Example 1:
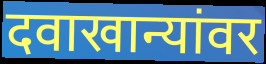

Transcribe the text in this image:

दवाखान्यांवर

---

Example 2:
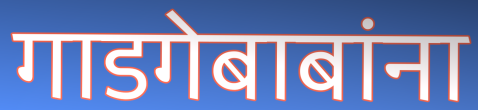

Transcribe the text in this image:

गाडगेबाबांना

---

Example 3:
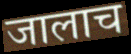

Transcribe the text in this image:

जालाच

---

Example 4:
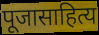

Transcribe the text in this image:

पूजासाहित्य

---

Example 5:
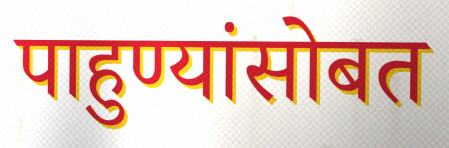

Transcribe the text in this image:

पाहुण्यांसोबत